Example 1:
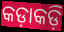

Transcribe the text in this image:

କଡ଼ାକଡ଼ି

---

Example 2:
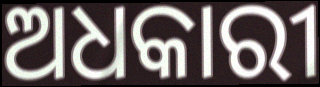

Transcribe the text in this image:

ଅଧକାରୀ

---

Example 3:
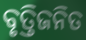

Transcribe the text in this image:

ବୃତ୍ତିଜନିତ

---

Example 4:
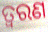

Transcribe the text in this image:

ତ୍ୱରଣ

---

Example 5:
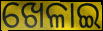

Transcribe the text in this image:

ଖେଳାଇ